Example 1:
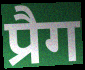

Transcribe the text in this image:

प्रैग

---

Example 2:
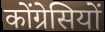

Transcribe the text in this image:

कोंग्रेसियों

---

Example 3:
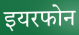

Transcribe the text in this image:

इयरफोन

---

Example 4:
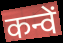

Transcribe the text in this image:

कन्वें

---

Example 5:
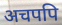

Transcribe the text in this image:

अचपपि